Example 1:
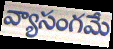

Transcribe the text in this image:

వ్యాసంగమే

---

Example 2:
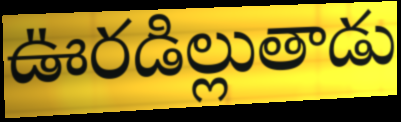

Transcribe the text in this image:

ఊరడిల్లుతాడు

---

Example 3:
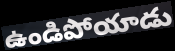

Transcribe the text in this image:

ఉండిపోయాడు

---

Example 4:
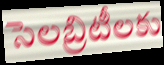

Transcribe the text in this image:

సెలబ్రిటీలకు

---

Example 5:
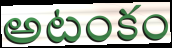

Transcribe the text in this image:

అటంకం